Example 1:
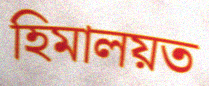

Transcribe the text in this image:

হিমালয়ত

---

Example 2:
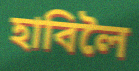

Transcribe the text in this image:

হাবিলৈ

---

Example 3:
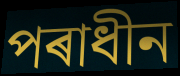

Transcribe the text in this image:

পৰাধীন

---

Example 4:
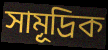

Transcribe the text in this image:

সামূদ্ৰিক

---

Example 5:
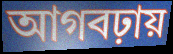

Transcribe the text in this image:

আগবঢ়ায়